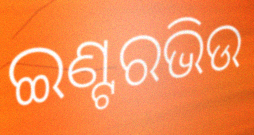
ଇଣ୍ଟରଭିଉ